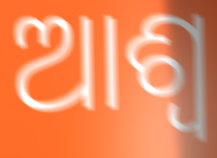
ଆଶ୍ୱ